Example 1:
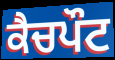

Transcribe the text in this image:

ਕੈਚਪੌਟ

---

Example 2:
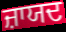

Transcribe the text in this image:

ਜ਼ਾਯਦ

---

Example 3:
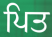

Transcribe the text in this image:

ਪਿਤ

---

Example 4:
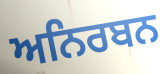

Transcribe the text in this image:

ਅਨਿਰਬਨ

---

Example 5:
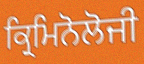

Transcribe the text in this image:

ਕ੍ਰਿਮਿਨੋਲੋਜੀ